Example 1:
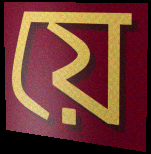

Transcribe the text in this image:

য়ে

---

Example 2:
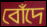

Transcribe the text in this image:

বোঁদে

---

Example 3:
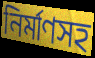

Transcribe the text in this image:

নির্মাণসহ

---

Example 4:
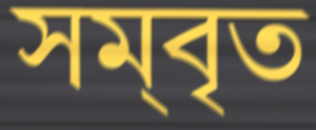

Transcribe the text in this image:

সম্‌বৃত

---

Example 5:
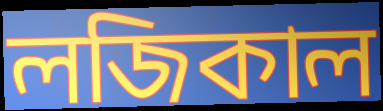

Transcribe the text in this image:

লজিকাল